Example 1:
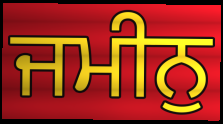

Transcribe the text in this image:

ਜਮੀਨੁ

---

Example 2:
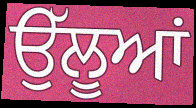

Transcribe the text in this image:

ਉੱਲੂਆਂ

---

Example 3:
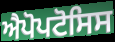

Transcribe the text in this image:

ਐਪੋਪਟੋਸਿਸ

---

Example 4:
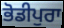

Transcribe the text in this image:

ਭੋਡੀਪੁਰਾ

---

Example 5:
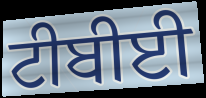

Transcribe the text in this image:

ਟੀਬੀਈ